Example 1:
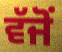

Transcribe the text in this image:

ਵੱਜੋਂ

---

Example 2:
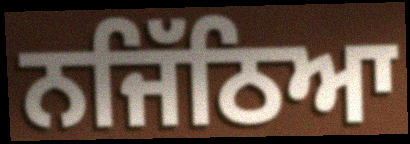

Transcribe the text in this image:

ਨਜਿੱਠਿਆ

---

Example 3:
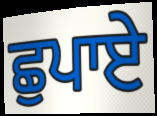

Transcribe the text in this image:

ਛੁਪਾਏ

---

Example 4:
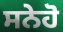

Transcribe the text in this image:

ਸਨੇਹੋ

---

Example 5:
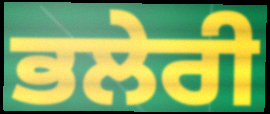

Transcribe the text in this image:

ਭਲੇਰੀ